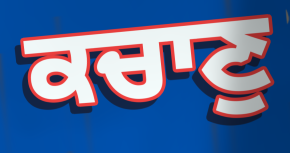
ਕਚਾਣੁ